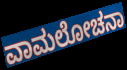
ವಾಮಲೋಚನಾ